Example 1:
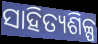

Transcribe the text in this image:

ସାହିତ୍ୟଶିଳ୍ପ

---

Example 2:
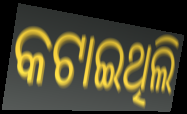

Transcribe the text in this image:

କଟାଇଥିଲି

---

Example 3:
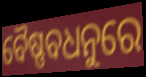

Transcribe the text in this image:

ବୈଷ୍ଣବଧନୁରେ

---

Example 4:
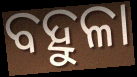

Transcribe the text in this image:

ବହୁଳା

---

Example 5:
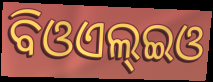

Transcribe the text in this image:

ବିଓଏଲ୍ଇଓ